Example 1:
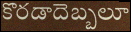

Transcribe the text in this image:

కొరడాదెబ్బలూ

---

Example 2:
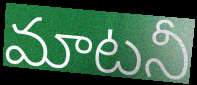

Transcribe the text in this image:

మాటనీ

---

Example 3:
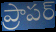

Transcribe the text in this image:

ప్రాపర్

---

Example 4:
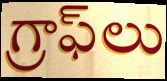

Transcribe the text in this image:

గ్రాఫ్‌లు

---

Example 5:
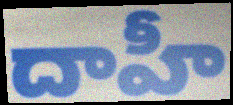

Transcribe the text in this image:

దాహీ